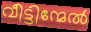
വീട്ടിന്മേൽ